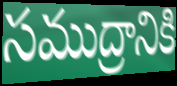
సముద్రానికి